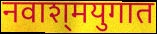
नवाश्मयुगात